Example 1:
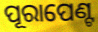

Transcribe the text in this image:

ପୂରାପେଣ୍ଟ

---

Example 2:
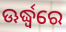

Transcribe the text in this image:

ଊର୍ଦ୍ଧ୍ୱରେ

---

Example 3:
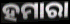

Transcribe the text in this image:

ହମାରା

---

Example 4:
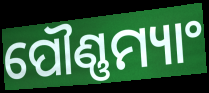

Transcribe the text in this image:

ପୌଣ୍ଣମ୍ୟାଂ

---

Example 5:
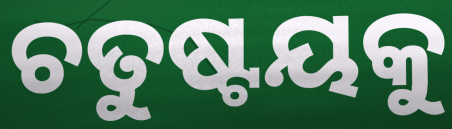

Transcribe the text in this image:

ଚତୁଷ୍ଟୟକୁ